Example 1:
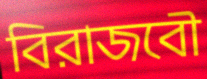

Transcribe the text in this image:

বিরাজবৌ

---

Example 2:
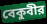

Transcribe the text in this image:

বেকুবীর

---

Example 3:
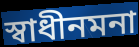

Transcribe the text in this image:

স্বাধীনমনা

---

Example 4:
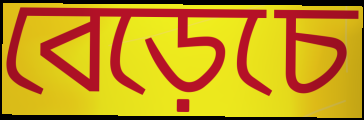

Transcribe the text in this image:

বেড়েচে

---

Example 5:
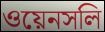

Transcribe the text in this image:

ওয়েনসলি